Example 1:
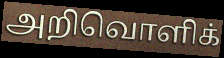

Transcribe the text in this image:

அறிவொளிக்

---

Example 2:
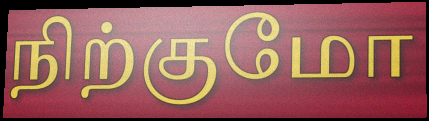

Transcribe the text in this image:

நிற்குமோ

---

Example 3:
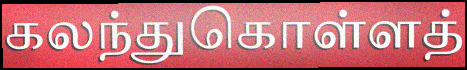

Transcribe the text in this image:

கலந்துகொள்ளத்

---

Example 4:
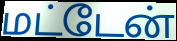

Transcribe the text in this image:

மட்டேன்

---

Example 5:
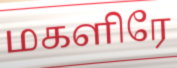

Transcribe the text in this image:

மகளிரே